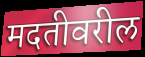
मदतीवरील